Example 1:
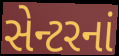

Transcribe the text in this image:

સેન્ટરનાં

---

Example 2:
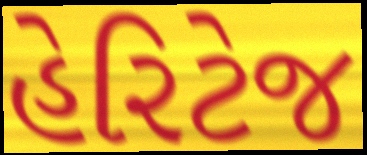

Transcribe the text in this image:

હેરિટેજ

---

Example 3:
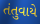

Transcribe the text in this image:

તંતુવાયે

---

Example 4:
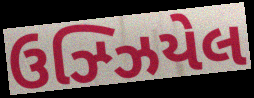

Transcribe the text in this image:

ઉઝ્ઝિયેલ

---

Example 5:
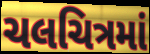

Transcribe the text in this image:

ચલચિત્રમાં